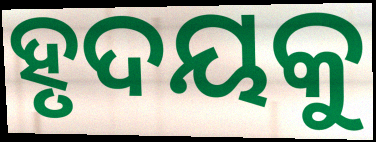
ହୃଦୟକୁ